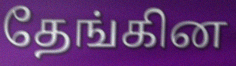
தேங்கின